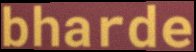
bharde